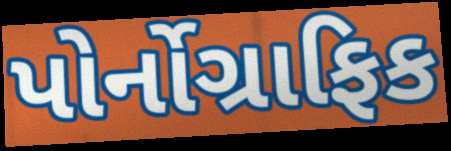
પોર્નોગ્રાફિક